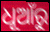
ଧୂଆଁରୁ